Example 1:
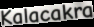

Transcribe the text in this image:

Kalacakra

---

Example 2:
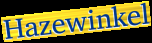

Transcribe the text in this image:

Hazewinkel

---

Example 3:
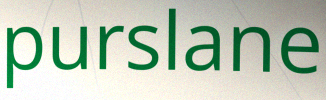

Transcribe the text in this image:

purslane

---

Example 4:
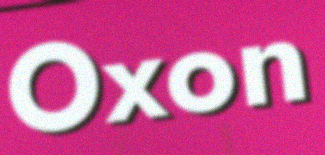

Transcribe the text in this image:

Oxon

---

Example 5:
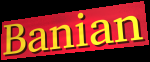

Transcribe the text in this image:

Banian